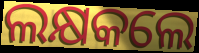
ଲକ୍ଷକଲେ